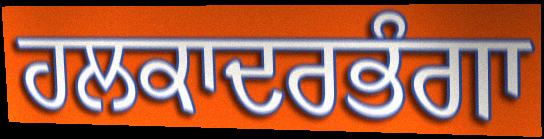
ਹਲਕਾਦਰਭੰਗਾ